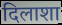
दिलाशा